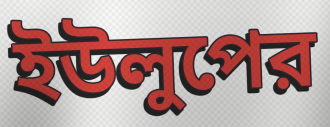
ইউলুপের